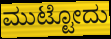
ಮುಟ್ಟೋದು